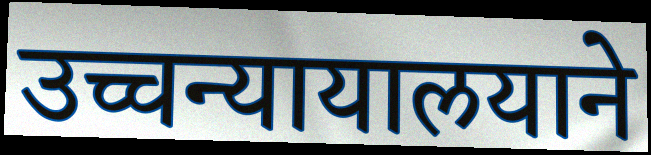
उच्चन्यायालयाने